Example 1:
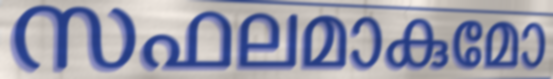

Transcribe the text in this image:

സഫലമാകുമോ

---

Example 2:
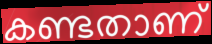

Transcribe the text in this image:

കണ്ടതാണ്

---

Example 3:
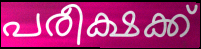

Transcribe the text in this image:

പരീക്ഷക്ക്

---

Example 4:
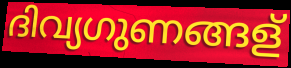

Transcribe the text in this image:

ദിവ്യഗുണങ്ങള്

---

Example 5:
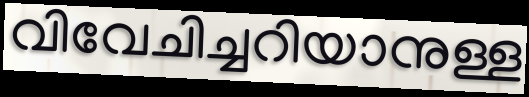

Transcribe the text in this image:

വിവേചിച്ചറിയാനുള്ള